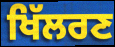
ਖਿੱਲਰਣ